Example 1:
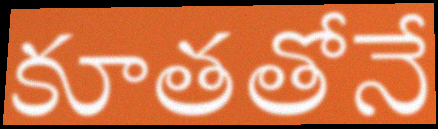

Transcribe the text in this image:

కూతతోనే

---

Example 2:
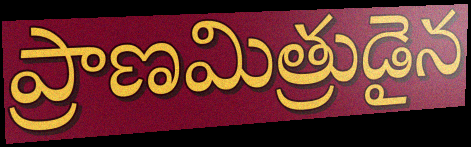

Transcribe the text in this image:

ప్రాణమిత్రుడైన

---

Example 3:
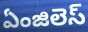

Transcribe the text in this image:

ఏంజిలెస్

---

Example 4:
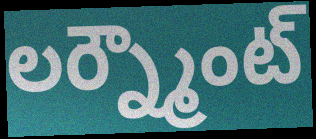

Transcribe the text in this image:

లర్న్మౌంట్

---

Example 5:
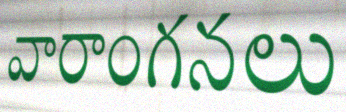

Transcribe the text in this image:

వారాంగనలు